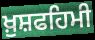
ਖ਼ੁਸ਼ਫਹਿਮੀ